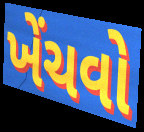
ખેંચવો